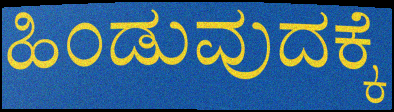
ಹಿಂಡುವುದಕ್ಕೆ